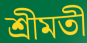
শ্ৰীমতী